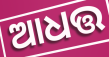
ଆଧତ୍ତ